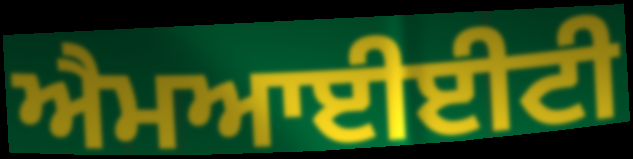
ਐਮਆਈਈਟੀ